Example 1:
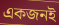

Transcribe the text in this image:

একজনই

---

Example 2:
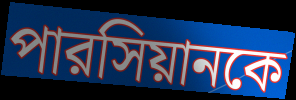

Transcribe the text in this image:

পারসিয়ানকে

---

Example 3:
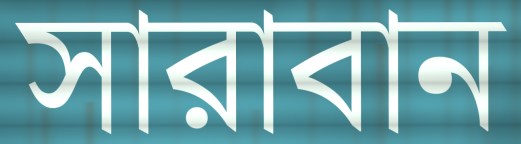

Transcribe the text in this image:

সারাবান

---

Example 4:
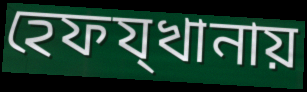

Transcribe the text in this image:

হেফয্খানায়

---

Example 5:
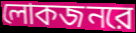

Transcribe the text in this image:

লোকজনরে